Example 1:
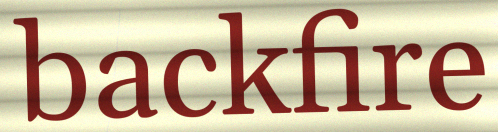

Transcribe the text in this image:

backfire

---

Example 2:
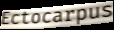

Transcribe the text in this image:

Ectocarpus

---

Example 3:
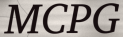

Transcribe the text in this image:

MCPG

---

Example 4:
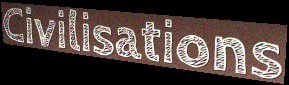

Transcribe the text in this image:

Civilisations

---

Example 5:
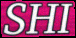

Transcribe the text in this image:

SHI